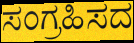
ಸಂಗ್ರಹಿಸದ